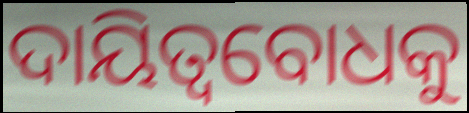
ଦାୟିତ୍ୱବୋଧକୁ